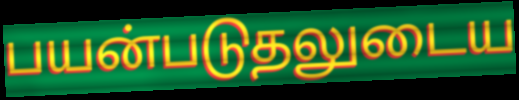
பயன்படுதலுடைய